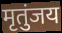
मृतुंजय